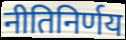
नीतिनिर्णय